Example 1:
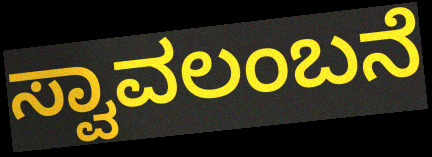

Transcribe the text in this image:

ಸ್ವಾವಲಂಬನೆ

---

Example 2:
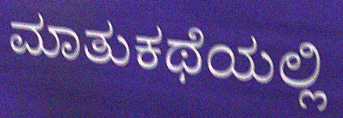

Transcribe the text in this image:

ಮಾತುಕಥೆಯಲ್ಲಿ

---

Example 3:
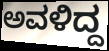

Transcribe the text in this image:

ಅವಳಿದ್ದ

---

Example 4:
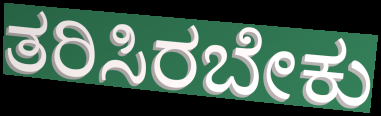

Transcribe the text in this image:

ತರಿಸಿರಬೇಕು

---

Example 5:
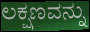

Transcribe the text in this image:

ಲಕ್ಷಣವನ್ನು